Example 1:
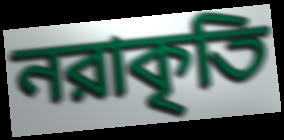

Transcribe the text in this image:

নরাকৃতি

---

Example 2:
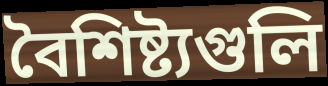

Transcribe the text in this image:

বৈশিষ্ট্যগুলি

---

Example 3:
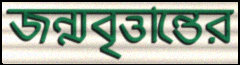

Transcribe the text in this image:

জন্মবৃত্তান্তের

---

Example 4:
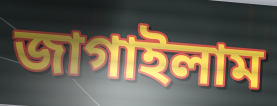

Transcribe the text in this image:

জাগাইলাম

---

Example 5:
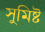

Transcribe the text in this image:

সুমিষ্ট